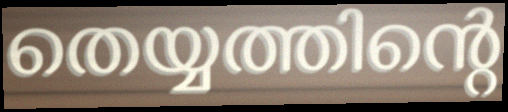
തെയ്യത്തിന്റെ